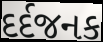
દર્દજનક